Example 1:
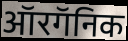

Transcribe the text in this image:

ऑरगॅनिक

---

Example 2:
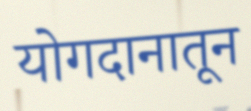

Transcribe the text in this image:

योगदानातून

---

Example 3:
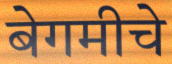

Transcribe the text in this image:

बेगमीचे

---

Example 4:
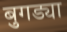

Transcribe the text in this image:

बुगड्या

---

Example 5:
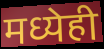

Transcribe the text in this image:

मध्येही